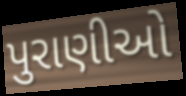
પુરાણીઓ